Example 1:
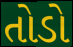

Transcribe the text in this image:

તોડો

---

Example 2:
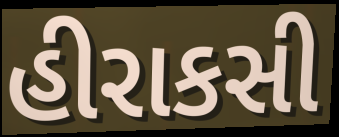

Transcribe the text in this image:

હીરાકસી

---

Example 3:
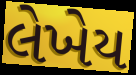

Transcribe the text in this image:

લેખેય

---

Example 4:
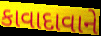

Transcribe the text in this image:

કાવાદાવાને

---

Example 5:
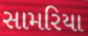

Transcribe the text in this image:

સામરિયા